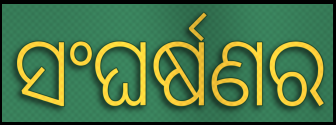
ସଂଘର୍ଷଣର